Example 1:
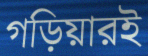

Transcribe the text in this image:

গড়িয়ারই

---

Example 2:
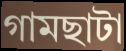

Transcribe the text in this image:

গামছাটা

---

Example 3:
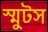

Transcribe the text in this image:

স্মুটস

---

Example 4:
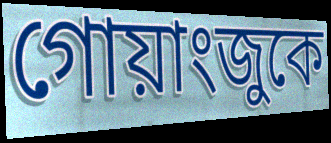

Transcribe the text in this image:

গোয়াংজুকে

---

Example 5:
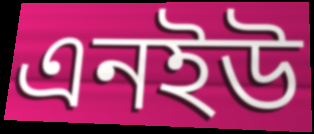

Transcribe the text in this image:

এনইউ